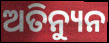
ଅତିନ୍ୟୁନ